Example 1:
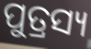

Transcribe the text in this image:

ପୁତ୍ରସ୍ୟ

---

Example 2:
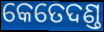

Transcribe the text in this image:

କେତେଦଣ୍ଡ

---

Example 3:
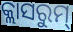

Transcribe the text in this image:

କ୍ଲାସରୁମ୍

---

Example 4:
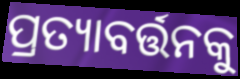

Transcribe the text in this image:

ପ୍ରତ୍ୟାବର୍ତ୍ତନକୁ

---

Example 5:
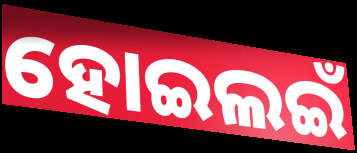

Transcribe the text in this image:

ହୋଇଲଇଁ